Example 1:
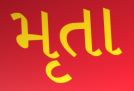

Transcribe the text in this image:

મૃતા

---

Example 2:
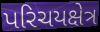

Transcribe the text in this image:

પરિચયક્ષેત્ર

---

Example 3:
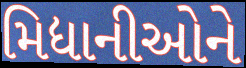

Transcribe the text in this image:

મિદ્યાનીઓને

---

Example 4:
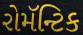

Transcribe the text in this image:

રોમૅન્ટિક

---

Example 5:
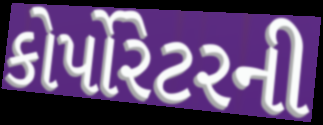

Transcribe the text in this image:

કોર્પોરેટરની